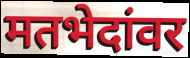
मतभेदांवर